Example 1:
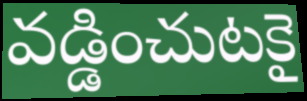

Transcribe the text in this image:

వడ్డించుటకై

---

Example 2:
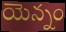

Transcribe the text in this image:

యెన్నం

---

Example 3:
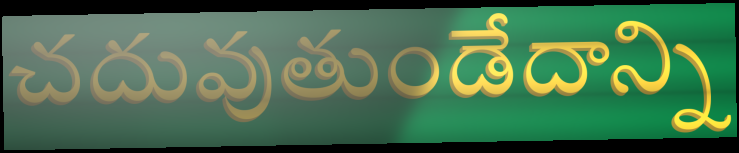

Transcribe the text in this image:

చదువుతుండేదాన్ని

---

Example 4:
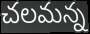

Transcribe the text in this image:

చలమన్న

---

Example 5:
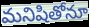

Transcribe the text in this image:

మనిషితోనూ